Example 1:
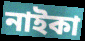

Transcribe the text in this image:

নাইকা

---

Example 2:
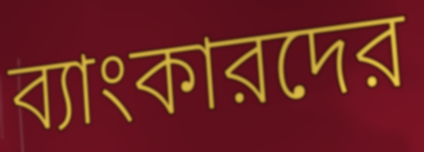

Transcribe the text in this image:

ব্যাংকারদের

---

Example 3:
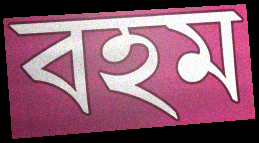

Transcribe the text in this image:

বহম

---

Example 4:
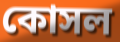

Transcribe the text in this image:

কোসল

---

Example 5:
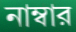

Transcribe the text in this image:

নাম্বার